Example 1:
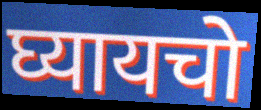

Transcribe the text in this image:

घ्यायचो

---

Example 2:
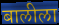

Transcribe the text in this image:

बालीला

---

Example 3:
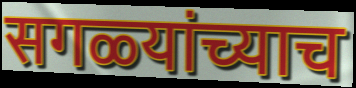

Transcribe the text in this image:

सगळ्यांच्याच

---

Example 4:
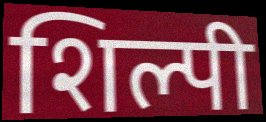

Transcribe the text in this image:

शिल्पी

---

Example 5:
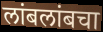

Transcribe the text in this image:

लांबलांबचा